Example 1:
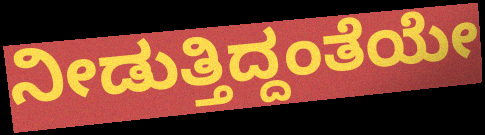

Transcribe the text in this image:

ನೀಡುತ್ತಿದ್ದಂತೆಯೇ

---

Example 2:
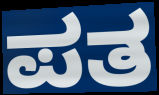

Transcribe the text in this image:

ಪತ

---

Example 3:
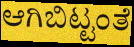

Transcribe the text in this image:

ಆಗಿಬಿಟ್ಟಂತೆ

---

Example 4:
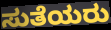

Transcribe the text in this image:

ಸುತೆಯರು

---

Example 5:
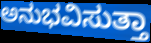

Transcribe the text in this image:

ಅನುಭವಿಸುತ್ತಾ